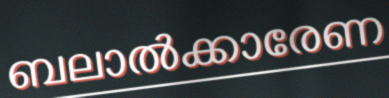
ബലാൽക്കാരേണ